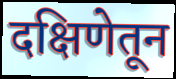
दक्षिणेतून